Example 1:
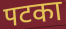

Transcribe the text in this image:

पटका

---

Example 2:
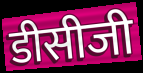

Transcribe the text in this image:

डीसीजी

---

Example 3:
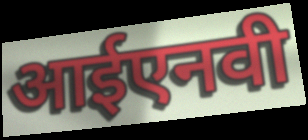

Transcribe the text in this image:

आईएनवी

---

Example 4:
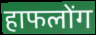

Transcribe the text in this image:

हाफलोंग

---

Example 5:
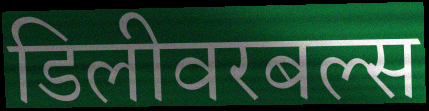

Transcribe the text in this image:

डिलीवरबल्स